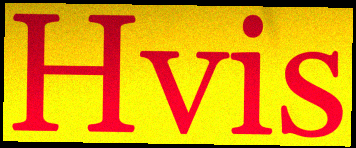
Hvis